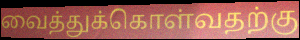
வைத்துக்கொள்வதற்கு